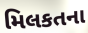
મિલકતના